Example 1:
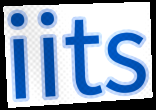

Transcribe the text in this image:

iits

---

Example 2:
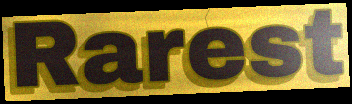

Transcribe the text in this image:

Rarest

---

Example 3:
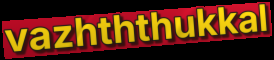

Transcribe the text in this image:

vazhththukkal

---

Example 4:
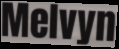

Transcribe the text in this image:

Melvyn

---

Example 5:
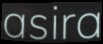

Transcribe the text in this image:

asira